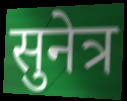
सुनेत्र